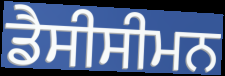
ਡੈਸੀਸੀਮਨ